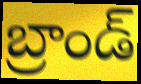
బ్రాండ్